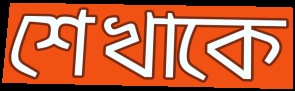
শেখাকে